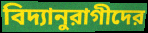
বিদ্যানুরাগীদের